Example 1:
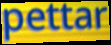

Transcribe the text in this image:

pettar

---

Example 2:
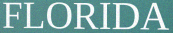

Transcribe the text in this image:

FLORIDA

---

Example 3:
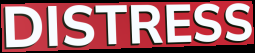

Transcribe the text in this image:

DISTRESS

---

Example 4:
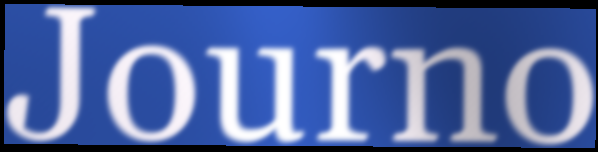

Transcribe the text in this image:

Journo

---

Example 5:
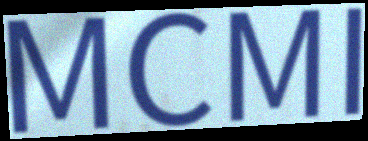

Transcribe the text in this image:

MCMI